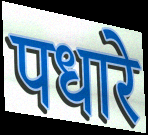
पधारे